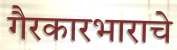
गैरकारभाराचे